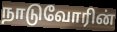
நாடுவோரின்